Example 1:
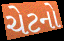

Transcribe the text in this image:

ચેટનો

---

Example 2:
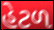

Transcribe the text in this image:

હેટળ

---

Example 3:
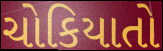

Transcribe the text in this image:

ચોકિયાતો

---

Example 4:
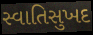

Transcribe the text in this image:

સ્વાતિસુખદ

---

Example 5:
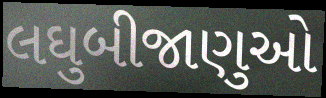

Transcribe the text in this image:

લઘુબીજાણુઓ